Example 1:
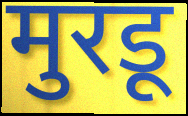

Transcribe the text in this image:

मुरडू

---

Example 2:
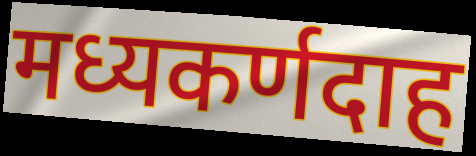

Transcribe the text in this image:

मध्यकर्णदाह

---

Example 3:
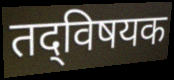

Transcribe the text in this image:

तद्‌विषयक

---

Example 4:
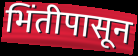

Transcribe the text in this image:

भिंतीपासून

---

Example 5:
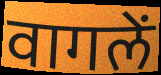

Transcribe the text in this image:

वागलें